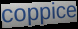
coppice